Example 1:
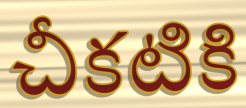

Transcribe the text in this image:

చీకటికి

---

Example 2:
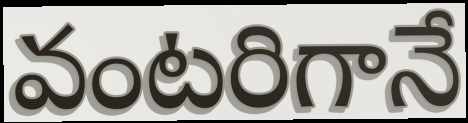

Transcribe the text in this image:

వంటరిగానే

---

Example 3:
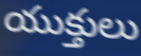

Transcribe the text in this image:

యుక్తులు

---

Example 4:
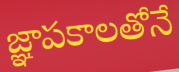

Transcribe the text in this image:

జ్ఞాపకాలతోనే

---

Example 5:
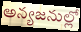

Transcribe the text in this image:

అన్యజనుల్లో